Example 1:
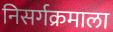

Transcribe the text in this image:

निसर्गक्रमाला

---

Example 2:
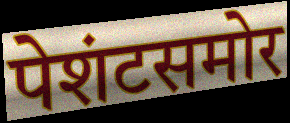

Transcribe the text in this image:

पेशंटसमोर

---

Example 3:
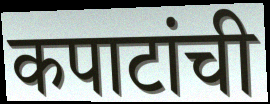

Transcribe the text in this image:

कपाटांची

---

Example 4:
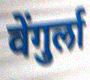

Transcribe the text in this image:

वेंगुर्ला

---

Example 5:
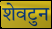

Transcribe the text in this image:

शेवटुन